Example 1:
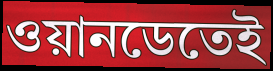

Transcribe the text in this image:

ওয়ানডেতেই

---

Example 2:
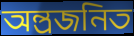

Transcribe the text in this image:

অন্ত্রজনিত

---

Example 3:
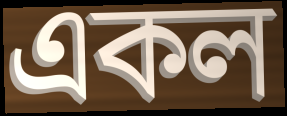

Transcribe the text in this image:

একল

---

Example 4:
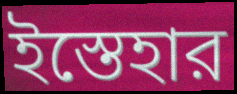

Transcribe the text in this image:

ইস্তেহার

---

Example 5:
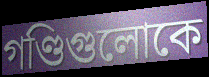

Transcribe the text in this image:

গণ্ডিগুলোকে